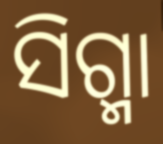
ସିଗ୍ମା